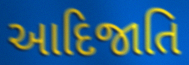
આદિજાતિ